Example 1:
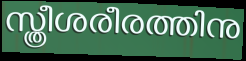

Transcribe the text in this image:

സ്ത്രീശരീരത്തിനു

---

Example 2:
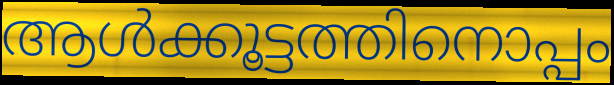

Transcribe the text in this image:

ആൾക്കൂട്ടത്തിനൊപ്പം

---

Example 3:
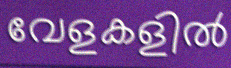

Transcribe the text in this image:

വേളകളിൽ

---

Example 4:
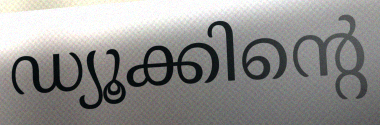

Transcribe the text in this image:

ഡ്യൂക്കിന്റെ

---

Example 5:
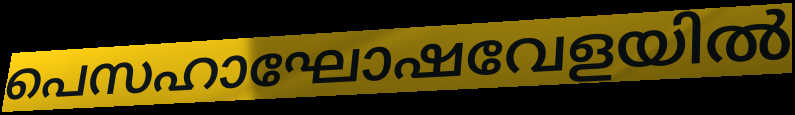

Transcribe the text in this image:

പെസഹാഘോഷവേളയിൽ